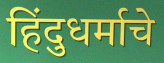
हिंदुधर्माचे